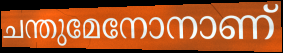
ചന്തുമേനോനാണ്